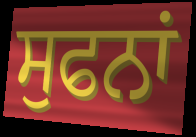
ਸੁਫਨਾਂ